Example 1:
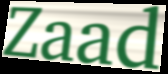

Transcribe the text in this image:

Zaad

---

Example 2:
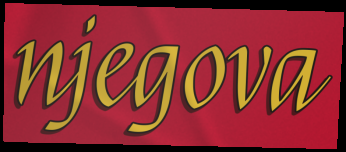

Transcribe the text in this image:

njegova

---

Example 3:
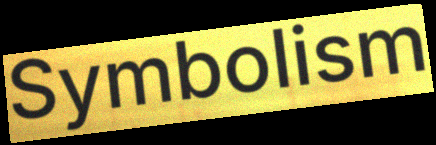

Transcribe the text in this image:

Symbolism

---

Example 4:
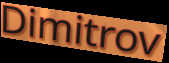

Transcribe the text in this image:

Dimitrov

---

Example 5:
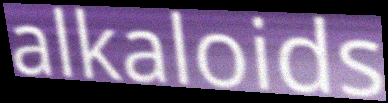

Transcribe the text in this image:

alkaloids